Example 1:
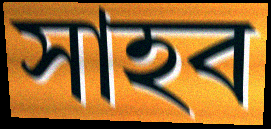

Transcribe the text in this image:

সাহব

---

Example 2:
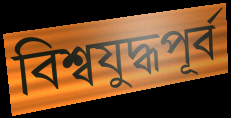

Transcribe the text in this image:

বিশ্বযুদ্ধপূর্ব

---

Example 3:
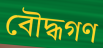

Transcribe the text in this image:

বৌদ্ধগণ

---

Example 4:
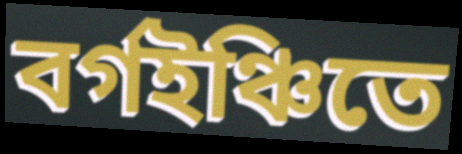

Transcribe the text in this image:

বর্গইঞ্চিতে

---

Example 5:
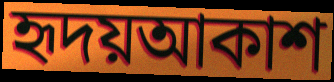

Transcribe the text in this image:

হৃদয়আকাশ